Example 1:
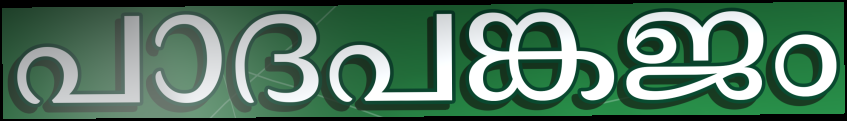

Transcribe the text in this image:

പാദപങ്കജം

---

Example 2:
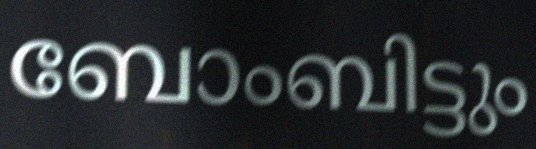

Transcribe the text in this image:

ബോംബിട്ടും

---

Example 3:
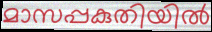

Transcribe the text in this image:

മാസപ്പകുതിയിൽ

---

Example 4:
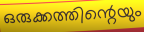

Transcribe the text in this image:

ഒരുക്കത്തിന്റെയും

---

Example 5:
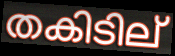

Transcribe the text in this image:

തകിടില്